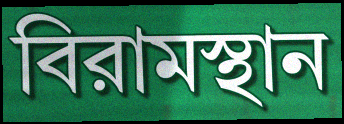
বিরামস্থান